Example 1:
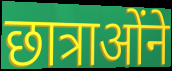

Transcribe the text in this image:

छात्राओंने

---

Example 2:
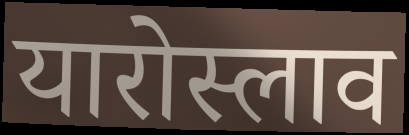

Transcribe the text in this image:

यारोस्लाव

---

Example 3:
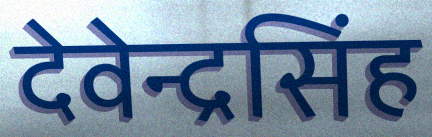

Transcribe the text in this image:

देवेन्द्रसिंह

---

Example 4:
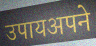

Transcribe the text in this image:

उपायअपने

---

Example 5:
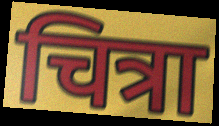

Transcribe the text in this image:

चित्रा